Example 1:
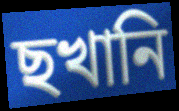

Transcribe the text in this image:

ছখানি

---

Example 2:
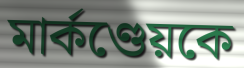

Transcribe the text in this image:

মার্কণ্ডেয়কে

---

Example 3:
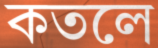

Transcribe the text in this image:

কতলে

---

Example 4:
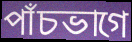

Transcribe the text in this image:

পাঁচভাগে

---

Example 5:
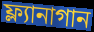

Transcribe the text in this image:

ফ্ল্যানাগান